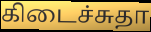
கிடைச்சுதா